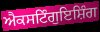
ਐਕਸਟਿੰਗੁਇਸ਼ਿੰਗ